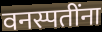
वनस्‍पतींना